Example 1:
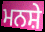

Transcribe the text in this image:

ਮਨਸ਼ੇ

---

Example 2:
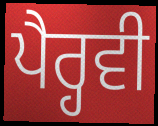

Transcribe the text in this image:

ਪੈਰ੍ਹਵੀ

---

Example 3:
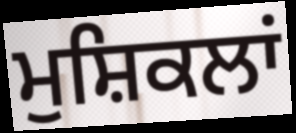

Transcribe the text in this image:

ਮੁਸ਼ਿਕਲਾਂ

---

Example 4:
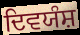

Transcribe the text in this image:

ਦਿਵਯੰਸ਼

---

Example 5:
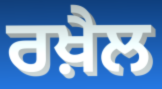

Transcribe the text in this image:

ਰਖ਼ੈਲ